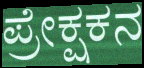
ಪ್ರೇಕ್ಷಕನ